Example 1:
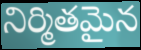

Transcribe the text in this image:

నిర్మితమైన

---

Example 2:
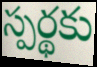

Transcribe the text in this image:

స్పర్థకు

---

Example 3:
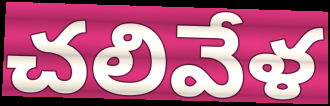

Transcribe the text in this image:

చలివేళ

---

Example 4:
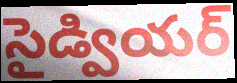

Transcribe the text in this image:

సైడ్వియర్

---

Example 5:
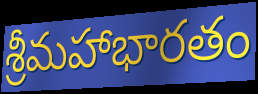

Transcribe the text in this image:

శ్రీమహాభారతం